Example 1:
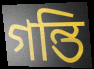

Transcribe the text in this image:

গন্তি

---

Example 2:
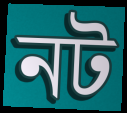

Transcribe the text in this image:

নট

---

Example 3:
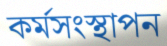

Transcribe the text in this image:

কৰ্মসংস্থাপন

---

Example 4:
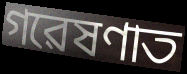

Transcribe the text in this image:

গৱেষণাত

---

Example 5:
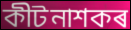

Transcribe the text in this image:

কীটনাশকৰ